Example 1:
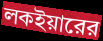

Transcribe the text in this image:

লকইয়ারের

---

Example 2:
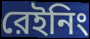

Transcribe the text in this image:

রেইনিং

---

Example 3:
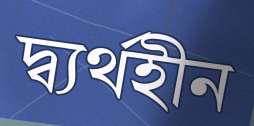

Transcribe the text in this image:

দ্ব্যর্থহীন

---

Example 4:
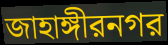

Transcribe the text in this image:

জাহাঙ্গীরনগর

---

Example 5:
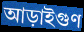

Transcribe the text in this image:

আড়াইগুণ